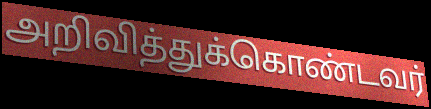
அறிவித்துக்கொண்டவர்